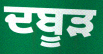
ਦਬੂੜ